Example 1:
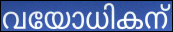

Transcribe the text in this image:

വയോധികന്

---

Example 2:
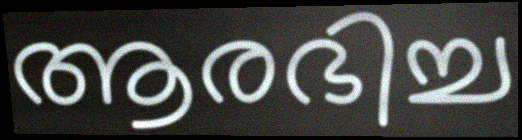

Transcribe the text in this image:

ആരഭിച്ച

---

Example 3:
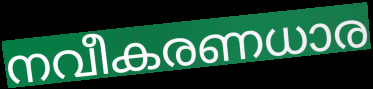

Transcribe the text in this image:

നവീകരണധാര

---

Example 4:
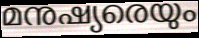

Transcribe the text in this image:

മനുഷ്യരെയും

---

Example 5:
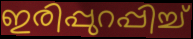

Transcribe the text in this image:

ഇരിപ്പുറപ്പിച്ച്